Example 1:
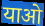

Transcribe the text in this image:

याओ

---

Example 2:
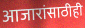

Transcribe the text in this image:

आजारांसाठीही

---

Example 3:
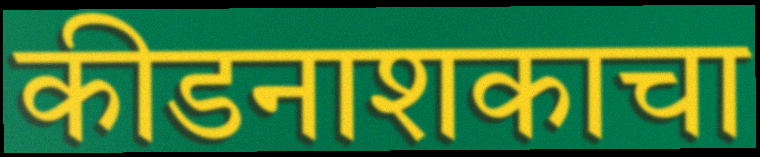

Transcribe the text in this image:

कीडनाशकाचा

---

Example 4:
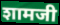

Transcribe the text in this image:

शामजी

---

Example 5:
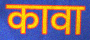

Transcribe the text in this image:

कावा